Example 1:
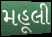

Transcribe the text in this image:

મહૂલી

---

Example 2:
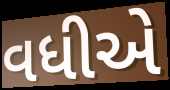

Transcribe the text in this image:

વધીએ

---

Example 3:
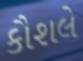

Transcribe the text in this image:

કૌશલે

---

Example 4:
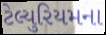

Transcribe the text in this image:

ટેલ્યુરિયમના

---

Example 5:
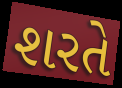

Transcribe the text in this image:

શરતે